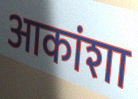
आकांशा